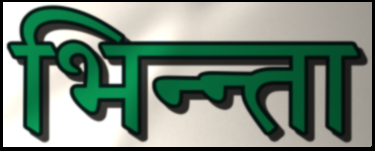
भिन्न्ता